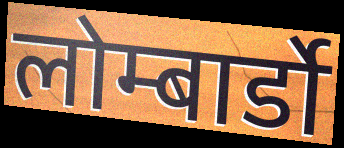
लोम्बार्डो